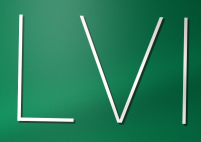
LVI